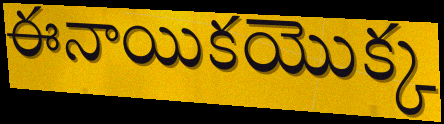
ఈనాయికయొక్క